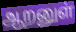
ஆறனுள்